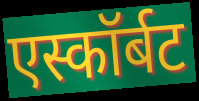
एस्कॉर्बट